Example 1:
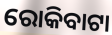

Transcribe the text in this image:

ରୋକିବାଟା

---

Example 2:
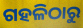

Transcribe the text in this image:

ଗହଳିଠାରୁ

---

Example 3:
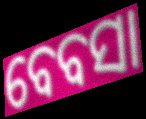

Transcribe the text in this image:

ବେବସା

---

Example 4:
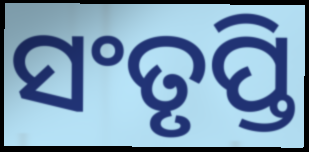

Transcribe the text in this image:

ସଂତୃପ୍ତି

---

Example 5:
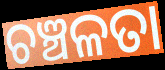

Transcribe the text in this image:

ଚଞ୍ଚଳତା